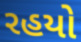
રહયો